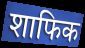
शाफिक